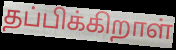
தப்பிக்கிறாள்